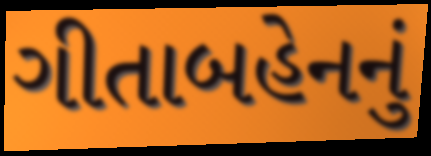
ગીતાબહેનનું